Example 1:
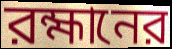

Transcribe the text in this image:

রহ্মানের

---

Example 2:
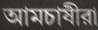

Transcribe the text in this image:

আমচাষীরা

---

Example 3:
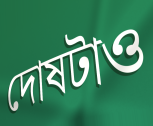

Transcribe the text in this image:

দোষটাও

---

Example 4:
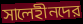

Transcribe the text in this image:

সালেহীনদের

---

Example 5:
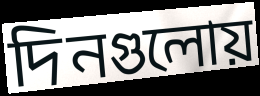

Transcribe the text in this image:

দিনগুলোয়